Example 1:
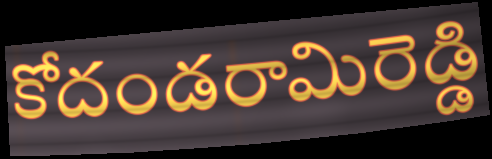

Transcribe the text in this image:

కోదండరామిరెడ్డి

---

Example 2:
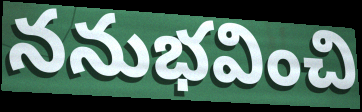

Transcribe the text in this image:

ననుభవించి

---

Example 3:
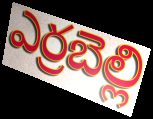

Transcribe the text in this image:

ఎర్రబెల్లి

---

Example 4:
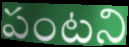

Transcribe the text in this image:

పంటని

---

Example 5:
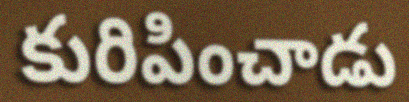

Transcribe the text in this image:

కురిపించాడు